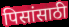
पिसांसाठी